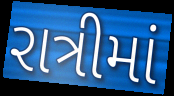
રાત્રીમાં